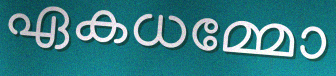
ഏകധമ്മോ